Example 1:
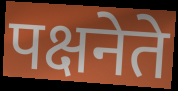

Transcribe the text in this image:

पक्षनेते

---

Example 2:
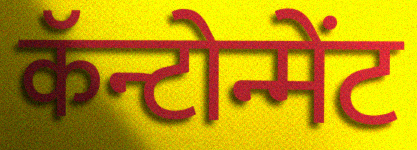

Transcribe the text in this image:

कॅन्टोन्मेंट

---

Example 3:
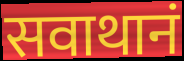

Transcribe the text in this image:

सवाथानं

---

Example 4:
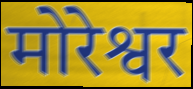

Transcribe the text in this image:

मोरेश्वर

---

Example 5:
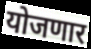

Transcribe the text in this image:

योजणार